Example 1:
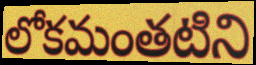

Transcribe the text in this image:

లోకమంతటిని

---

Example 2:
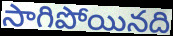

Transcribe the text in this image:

సాగిపోయినది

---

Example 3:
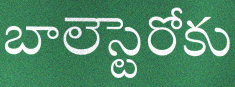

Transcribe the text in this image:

బాలెస్టెరోకు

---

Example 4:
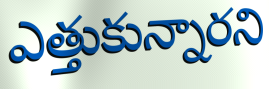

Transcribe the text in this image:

ఎత్తుకున్నారని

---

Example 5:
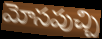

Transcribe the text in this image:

మోసపుచ్చి